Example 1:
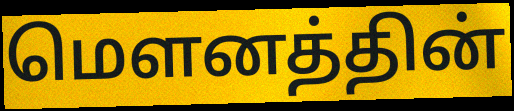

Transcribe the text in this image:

மௌனத்தின்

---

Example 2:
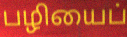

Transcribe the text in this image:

பழியைப்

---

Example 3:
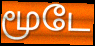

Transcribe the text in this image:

மூடே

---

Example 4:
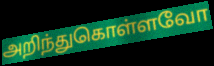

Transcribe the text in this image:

அறிந்துகொள்ளவோ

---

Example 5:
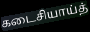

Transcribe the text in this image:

கடைசியாய்த்